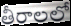
తీరాలలో